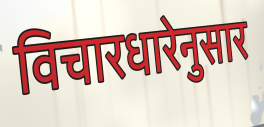
विचारधारेनुसार